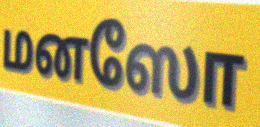
மனஸோ